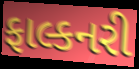
ફાલ્કનરી